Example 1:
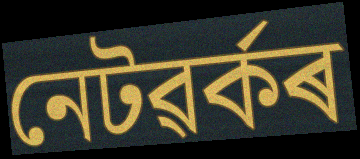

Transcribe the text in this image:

নেটৱৰ্কৰ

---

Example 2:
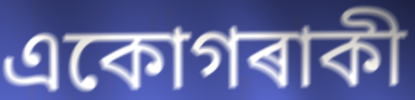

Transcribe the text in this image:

একোগৰাকী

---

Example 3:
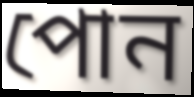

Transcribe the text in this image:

পোন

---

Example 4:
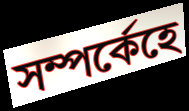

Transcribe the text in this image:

সম্পৰ্কেহে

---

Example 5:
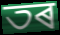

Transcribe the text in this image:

তৰ